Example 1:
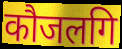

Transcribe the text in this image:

कौजलगि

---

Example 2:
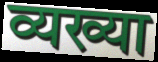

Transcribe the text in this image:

व्यख्या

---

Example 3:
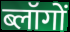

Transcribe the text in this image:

ब्‍लॉगों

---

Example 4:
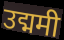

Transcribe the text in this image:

उद्ममी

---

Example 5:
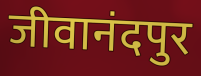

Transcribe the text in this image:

जीवानंदपुर